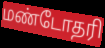
மண்டோதரி